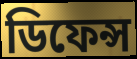
ডিফেন্স